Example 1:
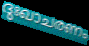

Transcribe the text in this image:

ദുഃഖാചരണം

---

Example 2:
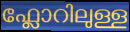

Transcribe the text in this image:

ഫ്ലോറിലുള്ള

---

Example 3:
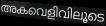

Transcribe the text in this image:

അകവെളിവിലൂടെ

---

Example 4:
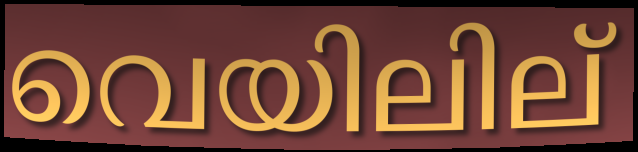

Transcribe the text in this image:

വെയിലില്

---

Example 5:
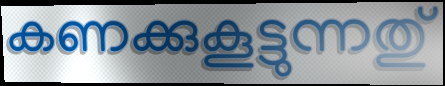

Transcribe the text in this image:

കണക്കുകൂട്ടുന്നതു്